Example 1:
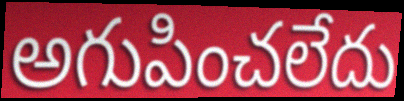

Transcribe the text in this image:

అగుపించలేదు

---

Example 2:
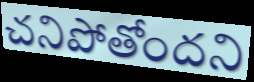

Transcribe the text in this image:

చనిపోతోందని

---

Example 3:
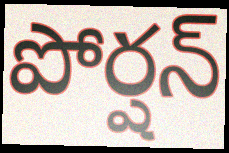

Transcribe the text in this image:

పోర్షన్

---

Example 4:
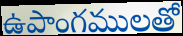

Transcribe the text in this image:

ఉపాంగములతో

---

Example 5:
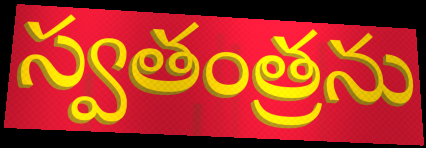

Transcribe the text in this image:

స్వతంత్రను